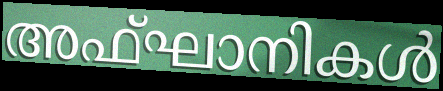
അഫ്ഘാനികൾ